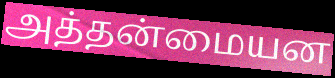
அத்தன்மையன